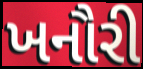
ખનૌરી